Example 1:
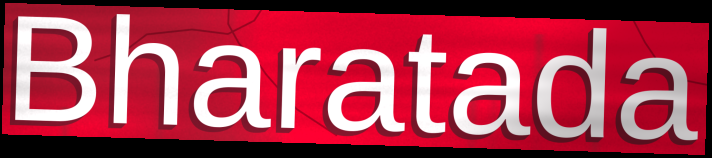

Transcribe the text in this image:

Bharatada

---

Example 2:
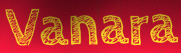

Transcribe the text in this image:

Vanara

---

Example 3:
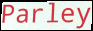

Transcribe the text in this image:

Parley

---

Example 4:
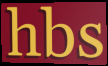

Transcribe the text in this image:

hbs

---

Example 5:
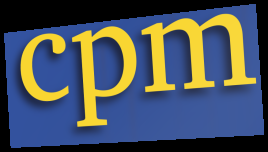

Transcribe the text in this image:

cpm